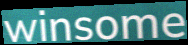
winsome